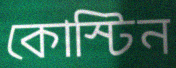
কোস্টিন